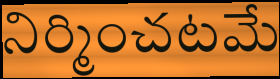
నిర్మించటమే